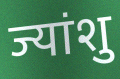
ज्यांशु